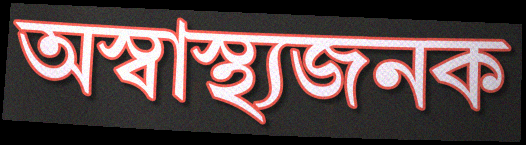
অস্বাস্থ্যজনক